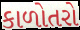
કાળોતરો